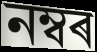
নম্বৰ